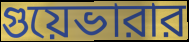
গুয়েভারার